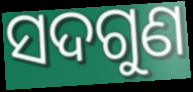
ସଦଗୁଣ